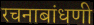
रचनाबांधणी